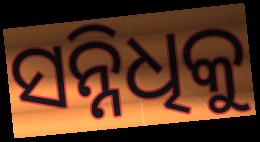
ସନ୍ନିଧିକୁ